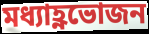
মধ্যাহ্ণভোজন